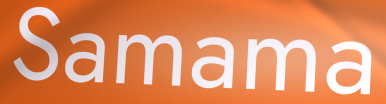
Samama